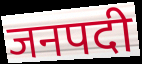
जनपदी